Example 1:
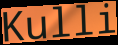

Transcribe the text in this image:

Kulli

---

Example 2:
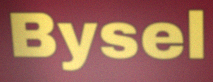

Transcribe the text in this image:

Bysel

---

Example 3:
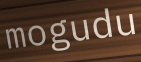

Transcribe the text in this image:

mogudu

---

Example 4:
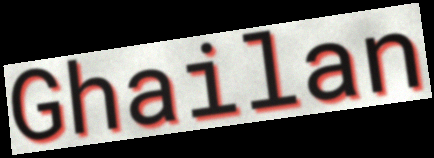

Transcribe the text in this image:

Ghailan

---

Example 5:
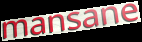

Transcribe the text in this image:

mansane